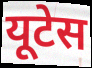
यूटेस